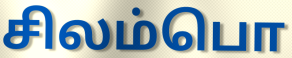
சிலம்பொ